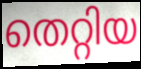
തെറ്റിയ